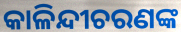
କାଳିନ୍ଦୀଚରଣଙ୍କ